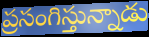
ప్రసంగిస్తున్నాడు